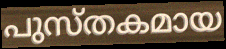
പുസ്തകമായ